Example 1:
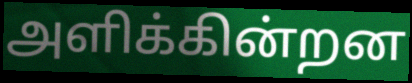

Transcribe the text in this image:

அளிக்கின்றன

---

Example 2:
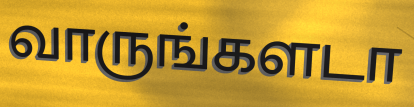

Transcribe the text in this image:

வாருங்களடா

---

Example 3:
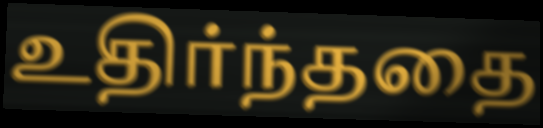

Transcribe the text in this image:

உதிர்ந்ததை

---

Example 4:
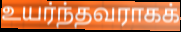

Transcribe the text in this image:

உயர்ந்தவராகக்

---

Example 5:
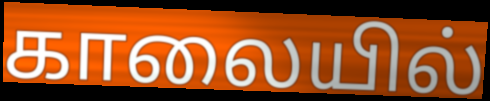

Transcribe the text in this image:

காலையில்